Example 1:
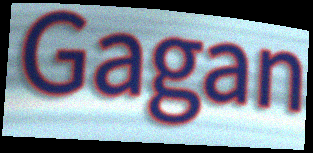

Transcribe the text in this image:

Gagan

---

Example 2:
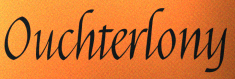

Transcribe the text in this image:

Ouchterlony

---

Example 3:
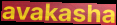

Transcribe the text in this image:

avakasha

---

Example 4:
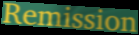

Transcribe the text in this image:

Remission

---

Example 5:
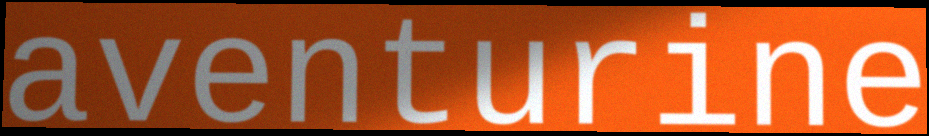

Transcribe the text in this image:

aventurine